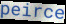
peirce